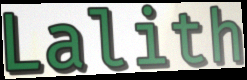
Lalith